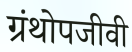
ग्रंथोपजीवी